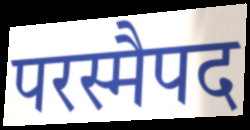
परस्मैपद